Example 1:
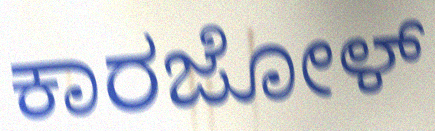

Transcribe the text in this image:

ಕಾರಜೋಳ್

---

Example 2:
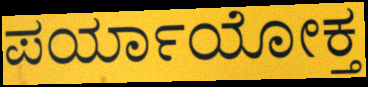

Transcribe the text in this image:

ಪರ್ಯಾಯೋಕ್ತ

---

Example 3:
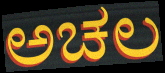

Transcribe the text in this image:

ಅಚಲ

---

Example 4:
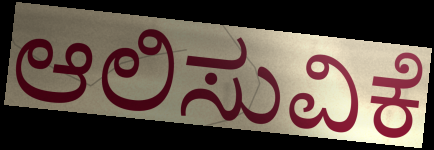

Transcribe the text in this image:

ಆಲಿಸುವಿಕೆ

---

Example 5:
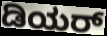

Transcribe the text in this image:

ಡಿಯರ್